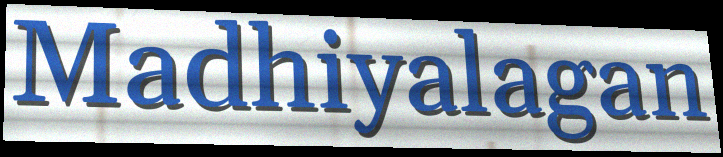
Madhiyalagan